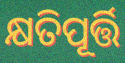
କ୍ଷତିପୂର୍ତ୍ତି